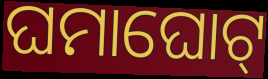
ଘମାଘୋଟ୍